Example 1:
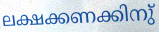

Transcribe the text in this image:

ലക്ഷക്കണക്കിനു്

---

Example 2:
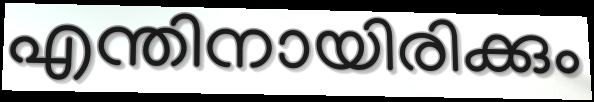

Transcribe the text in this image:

എന്തിനായിരിക്കും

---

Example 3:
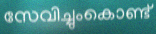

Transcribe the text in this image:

സേവിച്ചുംകൊണ്ട്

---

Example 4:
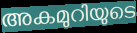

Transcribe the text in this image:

അകമുറിയുടെ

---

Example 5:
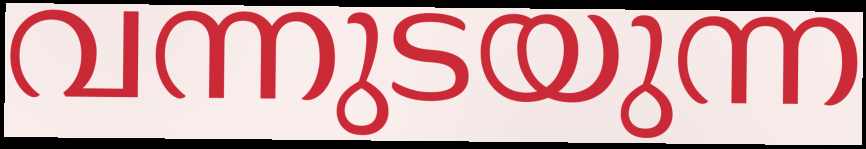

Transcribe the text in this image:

വന്നുടയുന്ന